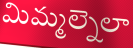
మిమ్మల్నెలా